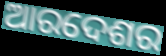
ଆରଦେଶର